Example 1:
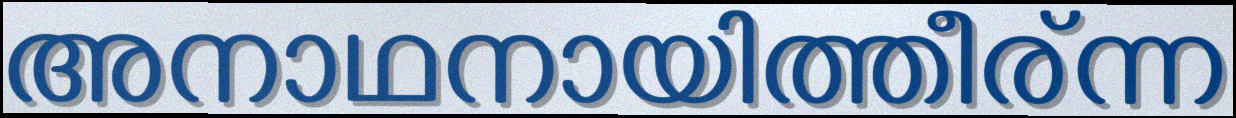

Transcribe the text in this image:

അനാഥനായിത്തീര്ന്ന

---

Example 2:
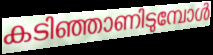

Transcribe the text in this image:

കടിഞ്ഞാണിടുമ്പോൾ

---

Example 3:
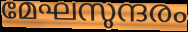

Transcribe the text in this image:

മേഘസുന്ദരം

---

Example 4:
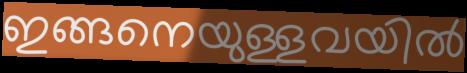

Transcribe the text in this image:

ഇങ്ങനെയുള്ളവയിൽ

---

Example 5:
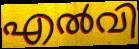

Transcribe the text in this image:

എൽവി